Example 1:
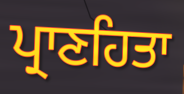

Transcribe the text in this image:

ਪ੍ਰਾਣਹਿਤਾ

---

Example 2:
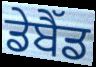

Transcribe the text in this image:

ਡੇਬੈੱਡ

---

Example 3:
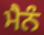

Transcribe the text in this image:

ਮੈਨੰ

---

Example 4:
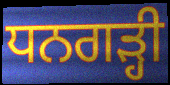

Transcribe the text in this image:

ਧਨਗੜ੍ਹੀ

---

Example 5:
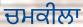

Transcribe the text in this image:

ਚਮਕੀਲਾ